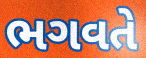
ભગવતે